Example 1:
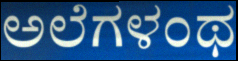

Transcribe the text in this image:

ಅಲೆಗಳಂಥ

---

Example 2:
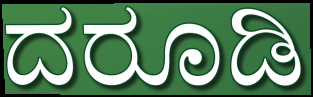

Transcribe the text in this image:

ದರೂಡಿ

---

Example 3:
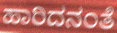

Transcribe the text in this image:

ಹಾರಿದನಂತೆ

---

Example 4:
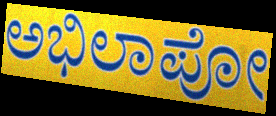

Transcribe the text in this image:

ಅಭಿಲಾಪೋ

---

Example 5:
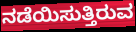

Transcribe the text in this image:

ನಡೆಯಿಸುತ್ತಿರುವ